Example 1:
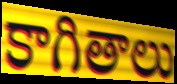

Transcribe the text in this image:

కాగితాలు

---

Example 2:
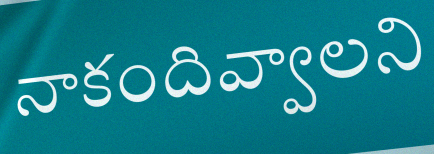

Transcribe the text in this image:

నాకందివ్వాలని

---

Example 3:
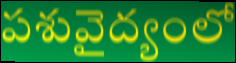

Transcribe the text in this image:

పశువైద్యంలో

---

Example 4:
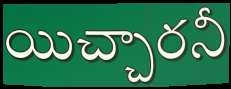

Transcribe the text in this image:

యిచ్చారనీ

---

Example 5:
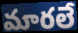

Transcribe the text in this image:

మారలే